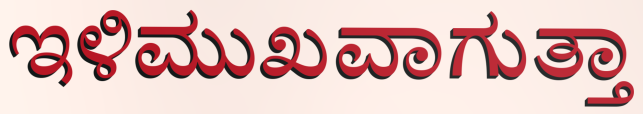
ಇಳಿಮುಖವಾಗುತ್ತಾ